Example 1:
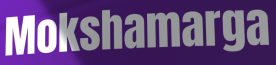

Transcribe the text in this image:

Mokshamarga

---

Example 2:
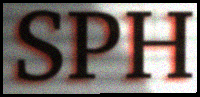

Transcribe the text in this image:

SPH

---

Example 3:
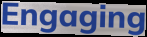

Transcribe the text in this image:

Engaging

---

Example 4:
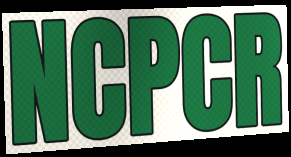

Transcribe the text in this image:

NCPCR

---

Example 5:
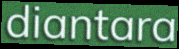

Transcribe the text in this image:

diantara